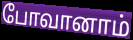
போவானாம்